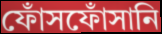
ফোঁসফোঁসানি